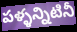
పళ్ళన్నిటినీ